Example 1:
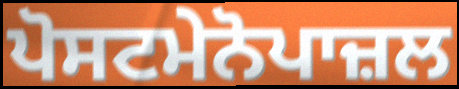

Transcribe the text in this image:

ਪੋਸਟਮੇਨੋਪਾਜ਼ਲ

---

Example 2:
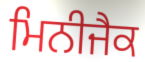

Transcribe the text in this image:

ਮਿਨੀਜੈਕ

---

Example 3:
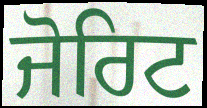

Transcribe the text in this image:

ਜੋਰਿਟ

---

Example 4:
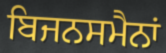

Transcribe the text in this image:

ਬਿਜਨਸਮੈਨਾਂ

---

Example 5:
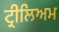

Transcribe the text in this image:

ਟ੍ਰੀਲਿਅਮ